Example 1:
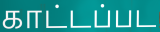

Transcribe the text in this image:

காட்டப்பட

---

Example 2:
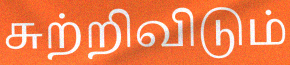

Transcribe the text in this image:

சுற்றிவிடும்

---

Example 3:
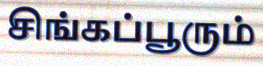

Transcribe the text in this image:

சிங்கப்பூரும்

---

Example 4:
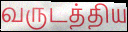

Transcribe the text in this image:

வருடத்திய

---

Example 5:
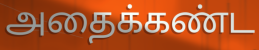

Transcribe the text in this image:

அதைக்கண்ட